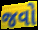
જવો